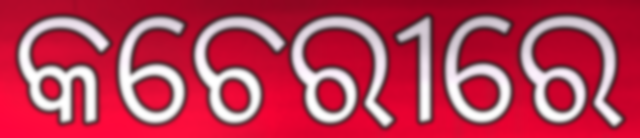
କଚେରୀରେ